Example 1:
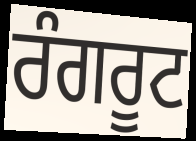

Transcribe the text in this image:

ਰੰਗਰੂਟ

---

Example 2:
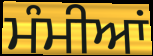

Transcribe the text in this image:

ਮੰਮੀਆਂ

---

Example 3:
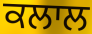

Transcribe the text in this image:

ਕਲਾਲ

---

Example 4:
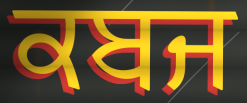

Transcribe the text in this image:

ਕਬਜ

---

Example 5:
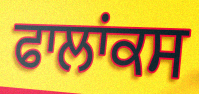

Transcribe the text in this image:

ਫਾਲਾਂਕਸ